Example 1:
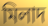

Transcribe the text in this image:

মিলাদ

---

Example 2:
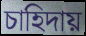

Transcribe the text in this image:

চাহিদায়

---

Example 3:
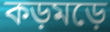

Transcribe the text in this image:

কড়মড়ে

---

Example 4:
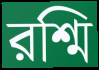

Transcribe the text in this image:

রশ্মি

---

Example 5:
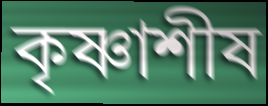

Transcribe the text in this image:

কৃষ্ণাশীষ